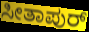
ಸೀತಾಪುರ್